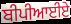
ਬੀਪੀਆਈਏ